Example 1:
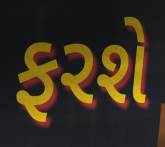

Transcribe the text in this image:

ફરશે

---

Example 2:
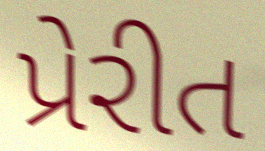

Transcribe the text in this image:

પ્રેરીત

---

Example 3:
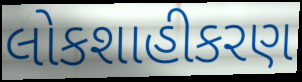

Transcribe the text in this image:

લોકશાહીકરણ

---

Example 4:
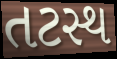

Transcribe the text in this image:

તટસ્થ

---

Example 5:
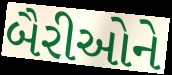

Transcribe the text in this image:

બૈરીઓને